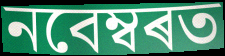
নবেম্বৰত